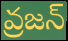
వ్రజన్